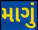
માગું